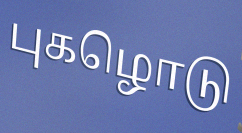
புகழொடு